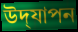
উদ্‌যাপন